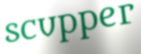
scupper